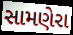
સામણેરા